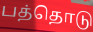
பத்தொடு